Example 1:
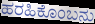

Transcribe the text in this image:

ಹರಹಿಕೊಂಬನು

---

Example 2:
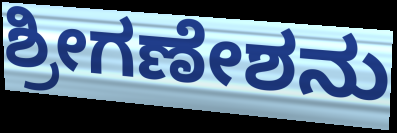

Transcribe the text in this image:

ಶ್ರೀಗಣೇಶನು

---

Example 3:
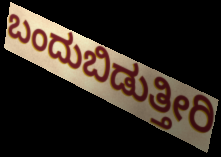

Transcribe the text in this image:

ಬಂದುಬಿಡುತ್ತೀರಿ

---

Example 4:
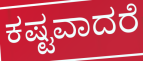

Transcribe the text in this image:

ಕಷ್ಟವಾದರೆ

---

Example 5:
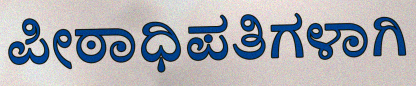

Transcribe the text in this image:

ಪೀಠಾಧಿಪತಿಗಳಾಗಿ